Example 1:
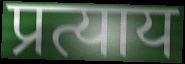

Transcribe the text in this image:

प्रत्याय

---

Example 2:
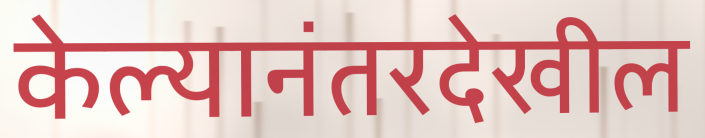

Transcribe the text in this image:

केल्यानंतरदेखील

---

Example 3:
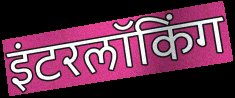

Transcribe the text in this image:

इंटरलॉकिंग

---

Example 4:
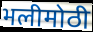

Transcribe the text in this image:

भलीमोठी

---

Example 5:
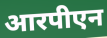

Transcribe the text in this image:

आरपीएन